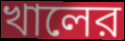
খালের